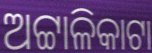
ଅଟ୍ଟାଳିକାଟା